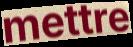
mettre